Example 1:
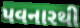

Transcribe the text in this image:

પવનારથી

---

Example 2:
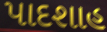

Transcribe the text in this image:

પાદશાહ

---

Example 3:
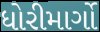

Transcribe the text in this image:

ધોરીમાર્ગો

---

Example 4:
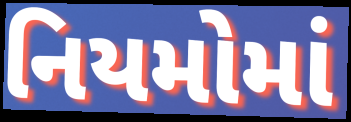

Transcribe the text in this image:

નિયમોમાં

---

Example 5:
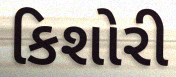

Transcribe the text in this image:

કિશોરી